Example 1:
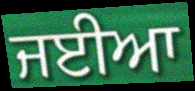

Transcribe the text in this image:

ਜਈਆ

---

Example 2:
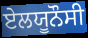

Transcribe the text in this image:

ਏਲਯੂਨੌਸੀ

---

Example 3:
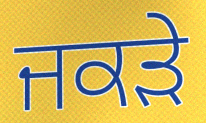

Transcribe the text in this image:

ਜਕੜੇ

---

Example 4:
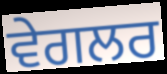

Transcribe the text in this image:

ਵੇਗਲਰ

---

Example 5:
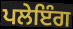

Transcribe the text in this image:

ਪਲੇਇੰਗ